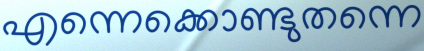
എന്നെക്കൊണ്ടുതന്നെ